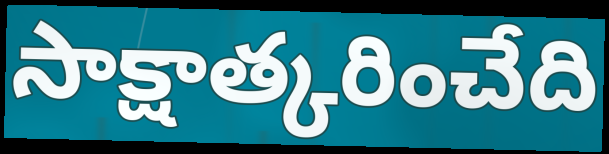
సాక్షాత్కరించేది